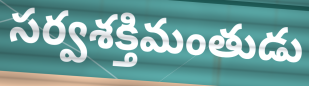
సర్వశక్తిమంతుడు